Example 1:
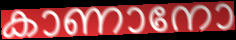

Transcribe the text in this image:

കാണാനോ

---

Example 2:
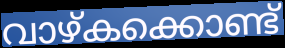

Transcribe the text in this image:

വാഴ്കക്കൊണ്ട്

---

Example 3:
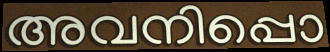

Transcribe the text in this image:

അവനിപ്പൊ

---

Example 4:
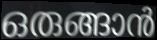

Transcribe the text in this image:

ഒരുങ്ങാൻ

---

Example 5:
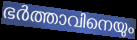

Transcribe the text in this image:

ഭർത്താവിനെയും